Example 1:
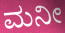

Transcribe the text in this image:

ಮನೀ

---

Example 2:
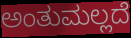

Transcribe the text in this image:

ಅಂತುಮಲ್ಲದೆ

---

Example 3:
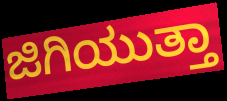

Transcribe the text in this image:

ಜಿಗಿಯುತ್ತಾ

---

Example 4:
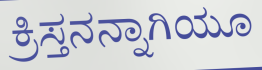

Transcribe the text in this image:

ಕ್ರಿಸ್ತನನ್ನಾಗಿಯೂ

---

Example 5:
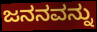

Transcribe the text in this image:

ಜನನವನ್ನು